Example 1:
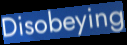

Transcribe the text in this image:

Disobeying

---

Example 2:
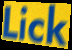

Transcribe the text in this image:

Lick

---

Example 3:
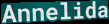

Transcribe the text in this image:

Annelida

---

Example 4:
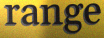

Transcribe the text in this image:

range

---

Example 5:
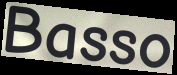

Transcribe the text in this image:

Basso